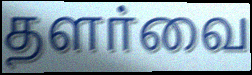
தளர்வை